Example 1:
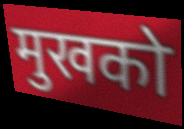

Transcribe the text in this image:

मुखको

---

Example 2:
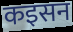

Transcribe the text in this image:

कइसन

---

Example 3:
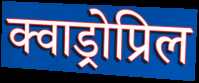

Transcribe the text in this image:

क्वाड्रोप्रिल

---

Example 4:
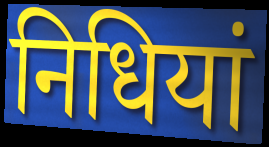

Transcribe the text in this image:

निधियां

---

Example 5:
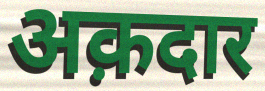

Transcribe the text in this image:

अक़दार